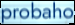
probaho